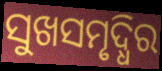
ସୁଖସମୃଦ୍ଧିର